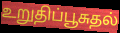
உறுதிப்பூசுதல்